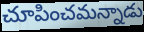
చూపించమన్నాడు